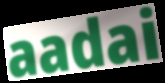
aadai